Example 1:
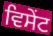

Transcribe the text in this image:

ਵਿਸੇਂਟ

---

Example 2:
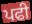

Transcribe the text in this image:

ਪਫੀ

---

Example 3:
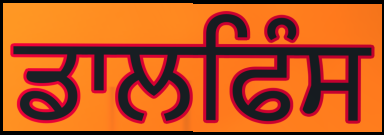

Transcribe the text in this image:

ਡਾਲਫਿੰਸ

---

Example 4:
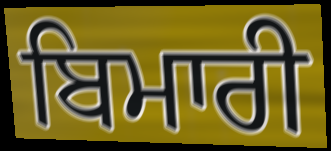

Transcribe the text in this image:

ਬਿਮਾਰੀ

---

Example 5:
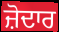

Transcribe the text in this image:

ਜ਼ੋਦਾਰ